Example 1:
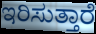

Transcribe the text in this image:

ಇರಿಸುತ್ತಾರೆ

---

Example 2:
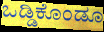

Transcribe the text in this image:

ಒಡ್ಡಿಕೊಂಡೂ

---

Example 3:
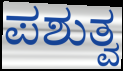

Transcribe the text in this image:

ಪಶುತ್ವ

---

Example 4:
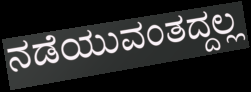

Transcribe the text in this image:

ನಡೆಯುವಂತದ್ದಲ್ಲ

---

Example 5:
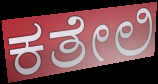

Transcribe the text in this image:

ಕತೇಲಿ